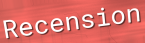
Recension